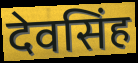
देवसिंह